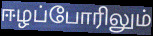
ஈழப்போரிலும்